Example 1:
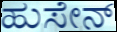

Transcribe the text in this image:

ಹುಸೇನ್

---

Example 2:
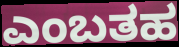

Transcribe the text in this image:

ಎಂಬತಹ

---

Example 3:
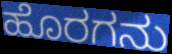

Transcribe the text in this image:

ಹೊರಗನು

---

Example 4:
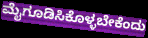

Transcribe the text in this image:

ಮೈಗೂಡಿಸಿಕೊಳ್ಳಬೇಕೆಂದು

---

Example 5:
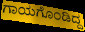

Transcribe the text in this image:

ಗಾಯಗೊಂಡಿದ್ದ